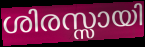
ശിരസ്സായി